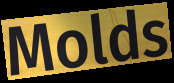
Molds